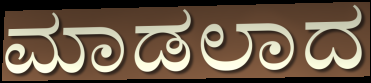
ಮಾಡಲಾದ